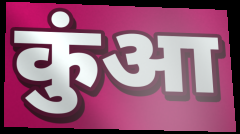
कुंआ